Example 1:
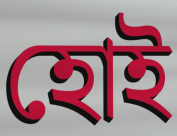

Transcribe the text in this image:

হোই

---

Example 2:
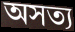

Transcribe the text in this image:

অসত্য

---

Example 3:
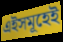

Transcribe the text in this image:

এইসমূহেই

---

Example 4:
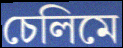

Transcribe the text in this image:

চেলিমে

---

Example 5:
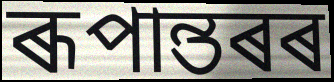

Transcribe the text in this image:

ৰূপান্তৰৰ